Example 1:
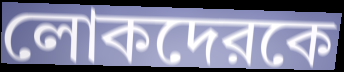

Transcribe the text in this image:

লোকদেরকে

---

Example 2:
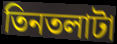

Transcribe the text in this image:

তিনতলাটা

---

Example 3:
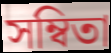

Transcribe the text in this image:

সম্বিতা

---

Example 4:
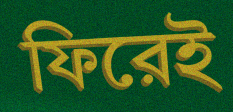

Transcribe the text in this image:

ফিরেই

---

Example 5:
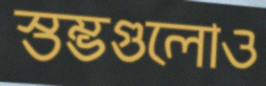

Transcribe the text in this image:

স্তম্ভগুলোও